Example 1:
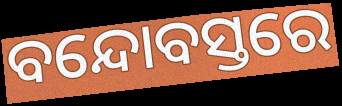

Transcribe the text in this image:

ବନ୍ଦୋବସ୍ତରେ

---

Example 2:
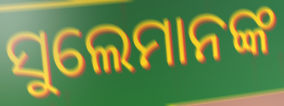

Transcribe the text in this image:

ସୁଲେମାନଙ୍କ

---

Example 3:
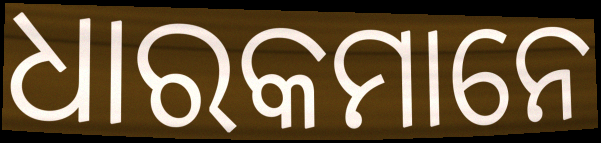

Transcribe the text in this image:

ଧାରକମାନେ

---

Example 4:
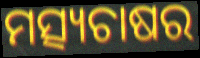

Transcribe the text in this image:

ମତ୍ସ୍ୟଚାଷର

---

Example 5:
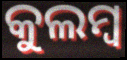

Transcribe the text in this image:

କୁଲମ୍ବ